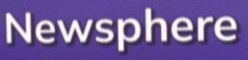
Newsphere